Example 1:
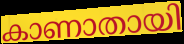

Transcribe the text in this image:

കാണാതായി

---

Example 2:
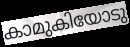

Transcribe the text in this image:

കാമുകിയോടു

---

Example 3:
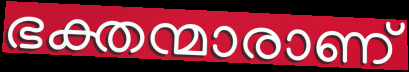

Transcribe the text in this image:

ഭക്തന്മാരാണ്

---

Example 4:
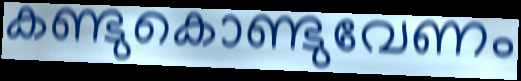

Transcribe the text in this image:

കണ്ടുകൊണ്ടുവേണം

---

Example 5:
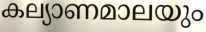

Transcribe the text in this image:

കല്യാണമാലയും